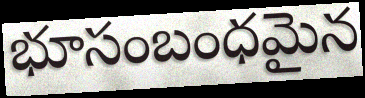
భూసంబంధమైన